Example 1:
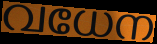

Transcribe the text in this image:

വധേന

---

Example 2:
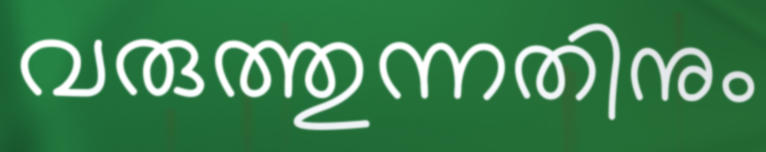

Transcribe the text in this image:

വരുത്തുന്നതിനും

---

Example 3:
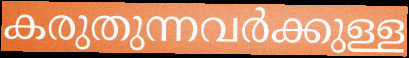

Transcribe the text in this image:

കരുതുന്നവർക്കുള്ള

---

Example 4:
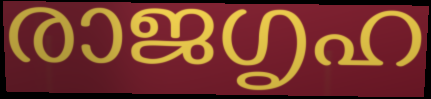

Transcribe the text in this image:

രാജഗൃഹ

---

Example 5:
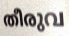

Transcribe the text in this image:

തീരുവ